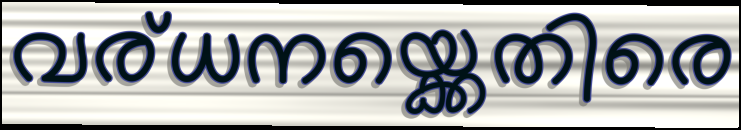
വര്ധനയ്ക്കെതിരെ